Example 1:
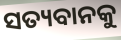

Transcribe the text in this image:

ସତ୍ୟବାନକୁ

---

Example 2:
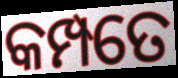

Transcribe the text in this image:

କମ୍ପତେ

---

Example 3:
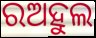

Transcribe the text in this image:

ରଅହୁଲ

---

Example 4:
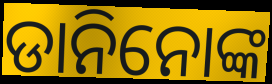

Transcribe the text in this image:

ଡାନିନୋଙ୍କ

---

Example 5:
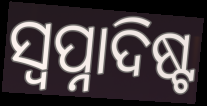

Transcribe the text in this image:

ସ୍ୱପ୍ନାଦିଷ୍ଟ